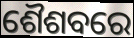
ଶୈଶବରେ